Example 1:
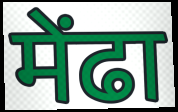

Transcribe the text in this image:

मेंढा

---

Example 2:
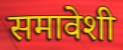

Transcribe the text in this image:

समावेशी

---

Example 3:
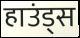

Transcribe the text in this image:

हाउंड्स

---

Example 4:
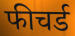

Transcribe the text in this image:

फीचर्ड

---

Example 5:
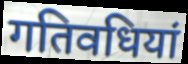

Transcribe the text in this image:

गतिवधियां